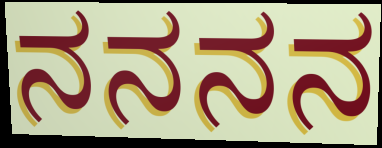
ನನನನ